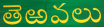
తెఱవలు